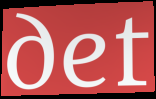
det